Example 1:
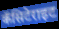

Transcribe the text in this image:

कॅसिटेराइट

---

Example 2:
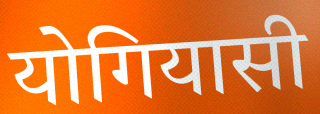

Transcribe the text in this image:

योगियासी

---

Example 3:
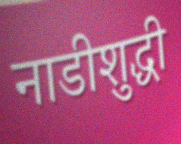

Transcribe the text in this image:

नाडीशुद्धी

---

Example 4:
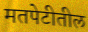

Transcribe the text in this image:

मतपेटीतील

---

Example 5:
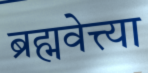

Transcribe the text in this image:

ब्रह्मवेत्त्या